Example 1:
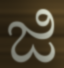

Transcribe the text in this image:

ಜಿ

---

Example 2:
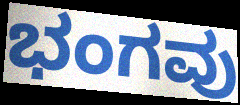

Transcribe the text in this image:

ಭಂಗವು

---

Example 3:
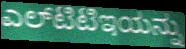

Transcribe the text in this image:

ಎಲ್‌ಟಿಟಿಇಯನ್ನು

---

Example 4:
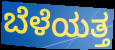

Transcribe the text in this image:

ಬೆಳೆಯತ್ತ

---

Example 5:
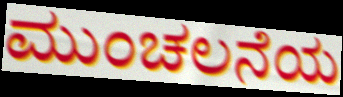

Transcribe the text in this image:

ಮುಂಚಲನೆಯ